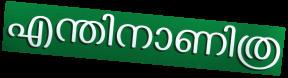
എന്തിനാണിത്ര